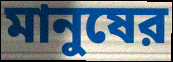
মানুষের